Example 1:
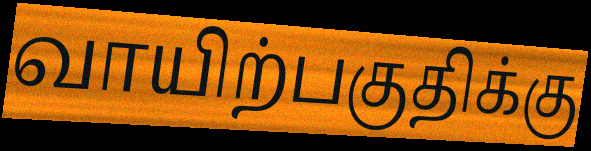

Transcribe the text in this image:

வாயிற்பகுதிக்கு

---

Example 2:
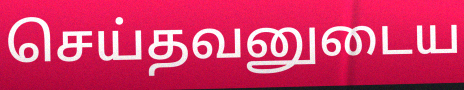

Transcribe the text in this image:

செய்தவனுடைய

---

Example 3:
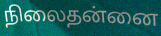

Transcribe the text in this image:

நிலைதன்னை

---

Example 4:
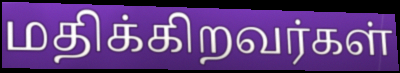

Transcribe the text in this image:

மதிக்கிறவர்கள்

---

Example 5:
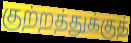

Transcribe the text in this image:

குற்றத்துக்குத்